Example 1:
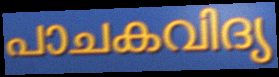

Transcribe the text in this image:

പാചകവിദ്യ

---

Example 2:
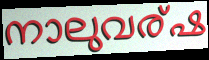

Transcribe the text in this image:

നാലുവര്ഷ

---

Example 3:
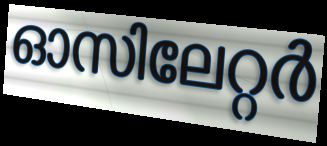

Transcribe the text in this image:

ഓസിലേറ്റർ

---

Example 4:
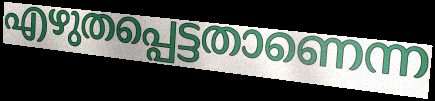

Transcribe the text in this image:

എഴുതപ്പെട്ടതാണെന്ന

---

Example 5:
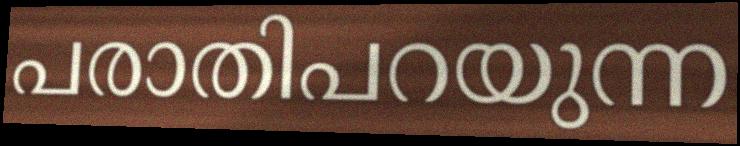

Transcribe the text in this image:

പരാതിപറയുന്ന